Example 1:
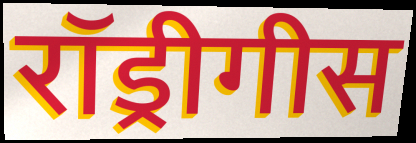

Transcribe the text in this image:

रॉड्रीगीस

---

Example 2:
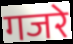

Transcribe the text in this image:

गजरे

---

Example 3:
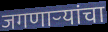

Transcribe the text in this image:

जगणाऱ्यांचा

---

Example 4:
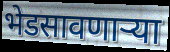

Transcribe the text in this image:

भेडसावणाऱ्या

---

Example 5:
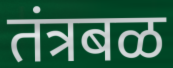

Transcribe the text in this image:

तंत्रबळ